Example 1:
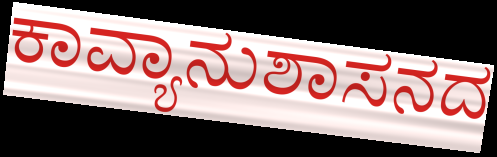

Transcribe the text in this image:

ಕಾವ್ಯಾನುಶಾಸನದ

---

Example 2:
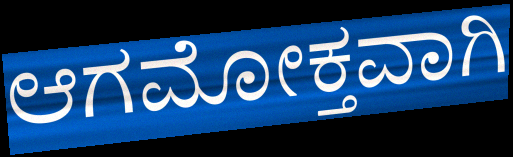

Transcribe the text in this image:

ಆಗಮೋಕ್ತವಾಗಿ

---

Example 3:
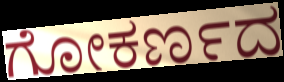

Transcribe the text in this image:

ಗೋಕರ್ಣದ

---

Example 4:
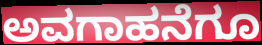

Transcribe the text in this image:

ಅವಗಾಹನೆಗೂ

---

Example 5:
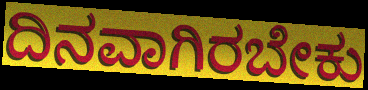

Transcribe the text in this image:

ದಿನವಾಗಿರಬೇಕು